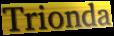
Trionda